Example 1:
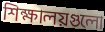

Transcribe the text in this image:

শিক্ষালয়গুলো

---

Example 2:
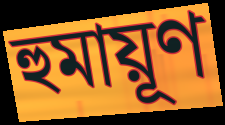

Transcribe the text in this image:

হুমায়ূণ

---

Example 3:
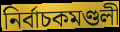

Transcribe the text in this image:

নির্বাচকমণ্ডলী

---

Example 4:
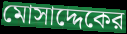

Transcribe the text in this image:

মোসাদ্দেকের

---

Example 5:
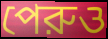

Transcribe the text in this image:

পেরুও